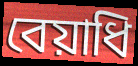
বেয়াধি